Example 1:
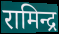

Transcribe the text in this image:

रामिन्द्र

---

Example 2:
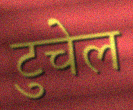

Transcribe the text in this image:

टुचेल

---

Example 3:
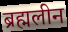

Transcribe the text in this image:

ब्रह्मलीन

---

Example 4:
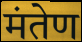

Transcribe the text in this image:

मंतेण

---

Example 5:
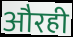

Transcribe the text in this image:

औरही